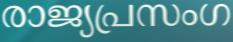
രാജ്യപ്രസംഗ